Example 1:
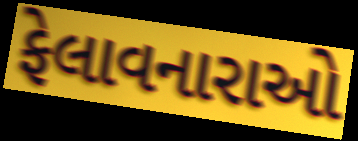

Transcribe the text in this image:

ફેલાવનારાઓ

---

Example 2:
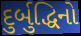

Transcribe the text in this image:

દુર્બુદ્ધિનો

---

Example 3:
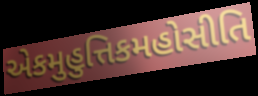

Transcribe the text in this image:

એકમુહુત્તિકમહોસીતિ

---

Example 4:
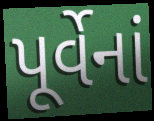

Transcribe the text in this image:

પૂર્વેનાં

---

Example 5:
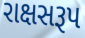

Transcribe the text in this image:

રાક્ષસરૂપ